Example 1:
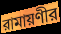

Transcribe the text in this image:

রামায়ণীর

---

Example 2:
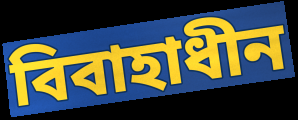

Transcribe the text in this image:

বিবাহাধীন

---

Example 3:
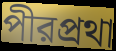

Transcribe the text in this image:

পীরপ্রথা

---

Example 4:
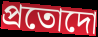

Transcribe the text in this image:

প্রতোদো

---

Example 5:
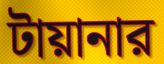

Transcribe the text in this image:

টায়ানার